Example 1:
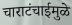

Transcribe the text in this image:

चाराटंचाईमुळे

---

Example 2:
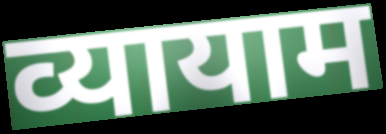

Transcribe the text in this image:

व्यायाम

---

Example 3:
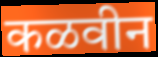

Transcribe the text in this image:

कळवीन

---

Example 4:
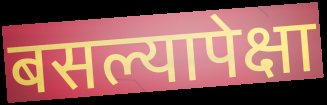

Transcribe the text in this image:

बसल्यापेक्षा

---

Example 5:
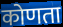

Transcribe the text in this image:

कोणता